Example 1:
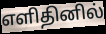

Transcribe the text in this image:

எளிதினில்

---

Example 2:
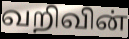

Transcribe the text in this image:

வறிவின்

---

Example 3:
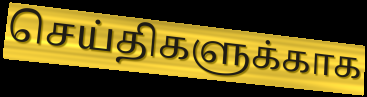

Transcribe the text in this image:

செய்திகளுக்காக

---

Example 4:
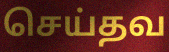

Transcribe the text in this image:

செய்தவ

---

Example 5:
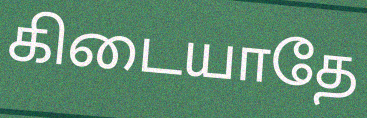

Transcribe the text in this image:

கிடையாதே